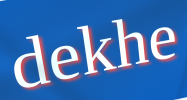
dekhe